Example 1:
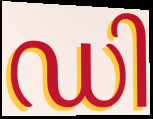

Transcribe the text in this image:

ഡി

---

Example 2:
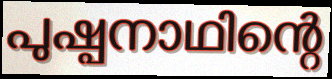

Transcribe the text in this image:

പുഷ്പനാഥിന്റെ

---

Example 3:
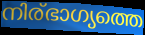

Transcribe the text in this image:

നിര്ഭാഗ്യത്തെ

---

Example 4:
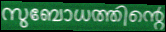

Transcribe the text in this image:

സുബോധത്തിന്റെ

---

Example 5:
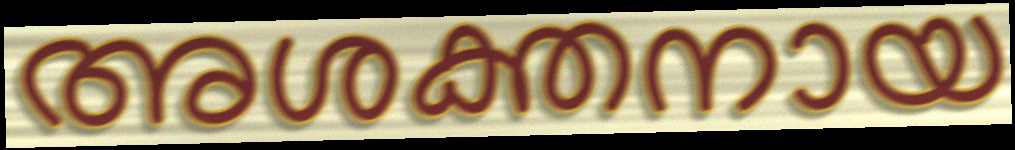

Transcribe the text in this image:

അശക്തനായ